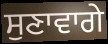
ਸੁਣਾਵਾਗੇ